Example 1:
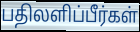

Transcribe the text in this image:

பதிலளிப்பீர்கள்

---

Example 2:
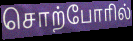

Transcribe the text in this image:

சொற்போரில்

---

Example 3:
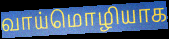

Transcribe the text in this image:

வாய்மொழியாக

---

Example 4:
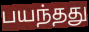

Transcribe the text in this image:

பயந்தது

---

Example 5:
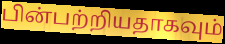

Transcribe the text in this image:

பின்பற்றியதாகவும்